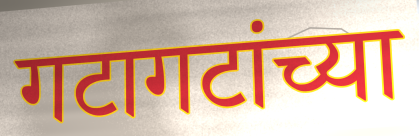
गटागटांच्या